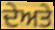
ਦੇਅਤੇ